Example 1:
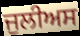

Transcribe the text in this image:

ਜੁਲੀਅਸ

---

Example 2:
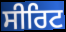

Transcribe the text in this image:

ਸੀਰਿਟ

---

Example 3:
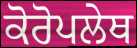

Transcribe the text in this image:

ਕੋਰੋਪਲੇਥ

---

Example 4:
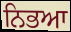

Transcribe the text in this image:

ਨਿਭਆ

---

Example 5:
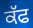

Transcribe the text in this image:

ਕੱਫ